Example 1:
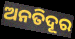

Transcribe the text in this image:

ଅନତିଦୂର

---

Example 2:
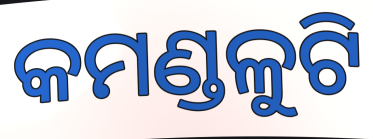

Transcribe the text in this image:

କମଣ୍ଡଳୁଟି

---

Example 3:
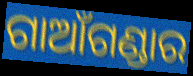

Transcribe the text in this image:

ଗାଆଁଗଣ୍ଡାର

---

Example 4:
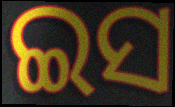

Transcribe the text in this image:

ଇସ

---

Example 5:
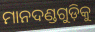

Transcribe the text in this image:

ମାନଦଣ୍ଡଗୁଡ଼ିକୁ